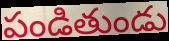
పండితుండు